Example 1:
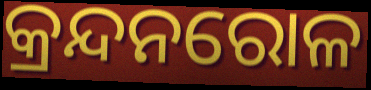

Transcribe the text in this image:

କ୍ରନ୍ଦନରୋଳ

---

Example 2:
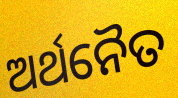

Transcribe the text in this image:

ଅର୍ଥନୈତ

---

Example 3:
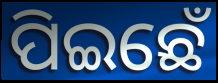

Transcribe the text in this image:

ପିଇଛେଁ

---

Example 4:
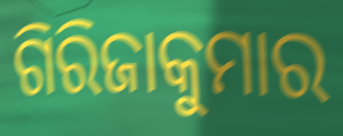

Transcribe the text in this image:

ଗିରିଜାକୁମାର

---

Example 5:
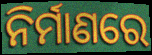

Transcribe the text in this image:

ନିର୍ମାଣରେ